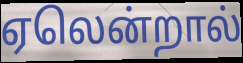
ஏலென்றால்